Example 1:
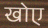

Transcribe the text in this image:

खोए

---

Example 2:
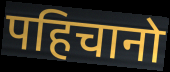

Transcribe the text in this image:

पहिचानो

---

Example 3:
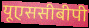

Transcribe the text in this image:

यूएससीबीपी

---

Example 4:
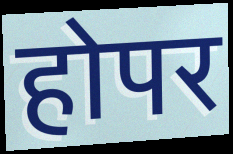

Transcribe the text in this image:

होपर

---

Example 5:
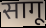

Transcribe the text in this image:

सागू